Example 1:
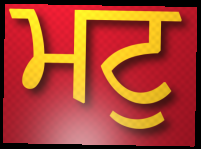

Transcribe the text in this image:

ਮਟੁ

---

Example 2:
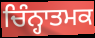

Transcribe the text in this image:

ਚਿੰਨ੍ਹਾਤਮਕ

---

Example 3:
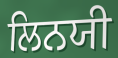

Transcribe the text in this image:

ਲਿਨਯੀ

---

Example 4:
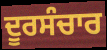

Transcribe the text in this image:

ਦੂਰਸੰਚਾਰ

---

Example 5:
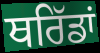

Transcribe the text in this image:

ਥਰਿੱਡਾਂ